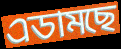
এডামছে